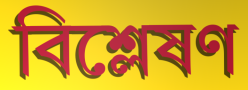
বিশ্লেষণ